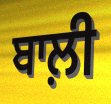
ਬਾਲ਼ੀ